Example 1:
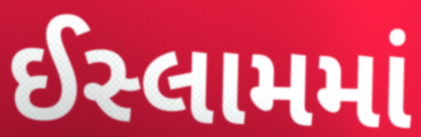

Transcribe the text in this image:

ઈસ્લામમાં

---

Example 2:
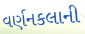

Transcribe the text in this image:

વર્ણનકલાની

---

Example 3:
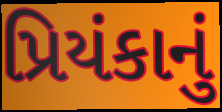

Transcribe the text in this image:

પ્રિયંકાનું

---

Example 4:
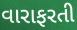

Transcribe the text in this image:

વારાફરતી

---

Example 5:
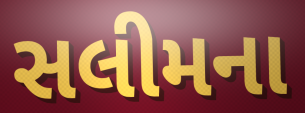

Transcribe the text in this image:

સલીમના